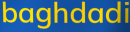
baghdadi